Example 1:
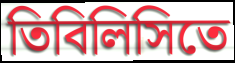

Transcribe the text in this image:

তিবিলিসিতে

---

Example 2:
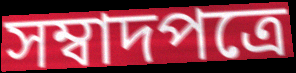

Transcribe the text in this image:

সম্বাদপত্রে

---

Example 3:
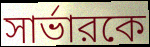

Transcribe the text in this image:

সার্ভারকে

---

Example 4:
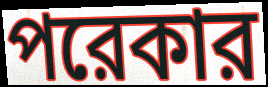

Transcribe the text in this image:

পরেকার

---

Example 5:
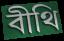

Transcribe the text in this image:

বীথি